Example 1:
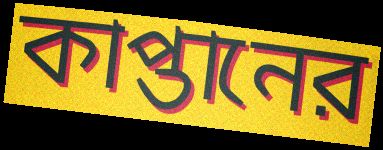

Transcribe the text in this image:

কাপ্তানের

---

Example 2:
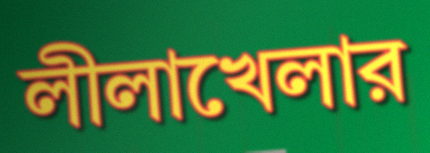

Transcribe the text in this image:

লীলাখেলার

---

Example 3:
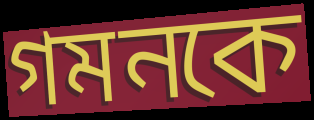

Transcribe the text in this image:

গমনকে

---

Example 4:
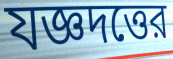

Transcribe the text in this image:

যজ্ঞদত্তের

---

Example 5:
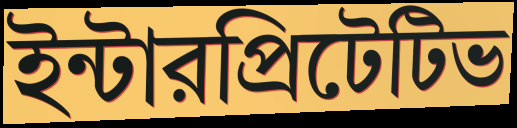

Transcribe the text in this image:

ইন্টারপ্রিটেটিভ